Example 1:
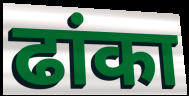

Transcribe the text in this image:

ढांका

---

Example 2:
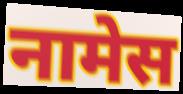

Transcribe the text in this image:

नामेस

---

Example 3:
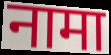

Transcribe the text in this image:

नामा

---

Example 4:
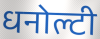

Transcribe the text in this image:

धनोल्‍टी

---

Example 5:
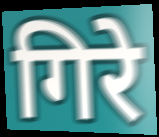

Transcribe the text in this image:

गिरे